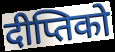
दीप्तिको